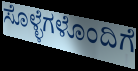
ಸೊಳ್ಳೆಗಳೊಂದಿಗೆ